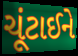
ચૂંટાઈને